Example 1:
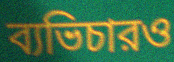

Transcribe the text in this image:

ব্যভিচারও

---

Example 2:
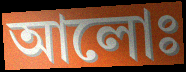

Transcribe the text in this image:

আলোঃ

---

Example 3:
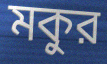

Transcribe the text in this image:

মকুর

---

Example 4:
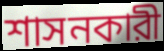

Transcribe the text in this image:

শাসনকারী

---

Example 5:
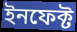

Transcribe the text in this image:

ইনফেক্ট